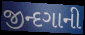
જીન્દગાની